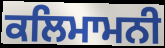
ਕਲਿਮਾਮਨੀ